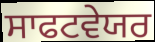
ਸਾਫਟਵੇਯਰ